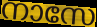
നാസേ